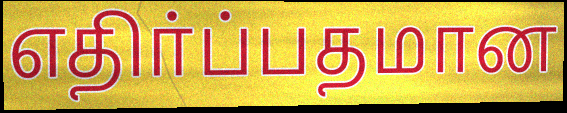
எதிர்ப்பதமான